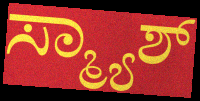
ಸ್ಮ್ಯಾಶ್